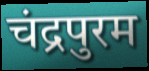
चंद्रपुरम